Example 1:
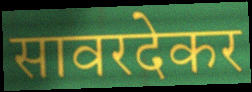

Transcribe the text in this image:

सावरदेकर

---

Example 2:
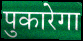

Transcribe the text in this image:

पुकारेगा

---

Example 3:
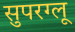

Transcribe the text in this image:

सुपरग्लू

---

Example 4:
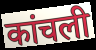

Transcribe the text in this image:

कांचली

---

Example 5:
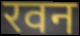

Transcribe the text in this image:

रवन